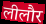
लीलौर